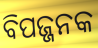
ବିପଜ୍ଜନକ